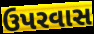
ઉપરવાસ